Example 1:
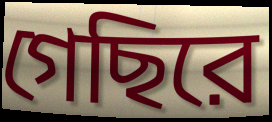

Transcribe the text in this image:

গেছিরে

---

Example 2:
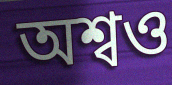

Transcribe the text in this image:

অশ্বও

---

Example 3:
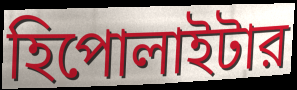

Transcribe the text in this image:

হিপোলাইটার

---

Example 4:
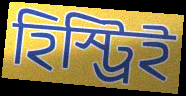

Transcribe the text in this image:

হিস্ট্রিই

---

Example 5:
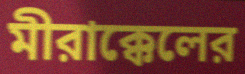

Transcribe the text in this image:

মীরাক্কেলের